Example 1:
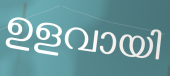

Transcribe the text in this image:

ഉളവായി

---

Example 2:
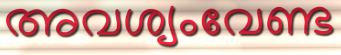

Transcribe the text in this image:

അവശ്യംവേണ്ട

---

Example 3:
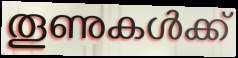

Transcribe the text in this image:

തൂണുകൾക്ക്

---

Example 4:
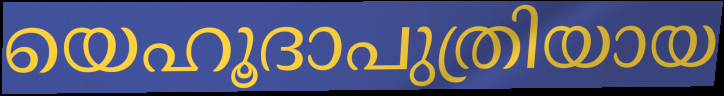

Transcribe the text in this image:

യെഹൂദാപുത്രിയായ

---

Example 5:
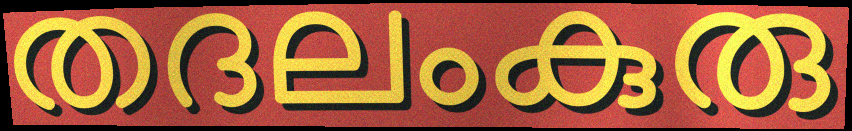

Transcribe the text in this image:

തദലംകുരു